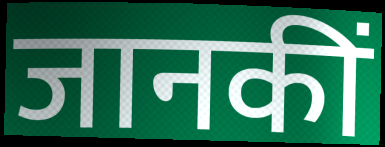
जानकीं